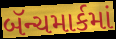
બૅન્ચમાર્કમાં